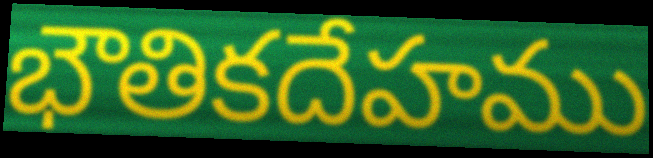
భౌతికదేహము